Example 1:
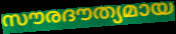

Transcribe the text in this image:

സൗരദൗത്യമായ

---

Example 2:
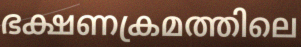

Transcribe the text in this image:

ഭക്ഷണക്രമത്തിലെ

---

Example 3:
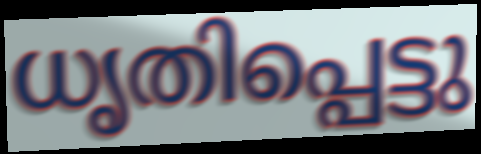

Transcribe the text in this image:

ധൃതിപ്പെട്ടു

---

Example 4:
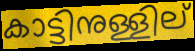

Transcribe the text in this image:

കാട്ടിനുള്ളില്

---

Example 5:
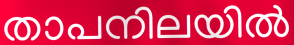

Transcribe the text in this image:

താപനിലയിൽ